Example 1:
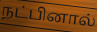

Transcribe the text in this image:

நட்பினால்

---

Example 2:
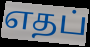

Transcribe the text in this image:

எதப்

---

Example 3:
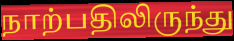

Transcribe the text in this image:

நாற்பதிலிருந்து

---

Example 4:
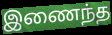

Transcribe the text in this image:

இணைந்த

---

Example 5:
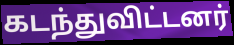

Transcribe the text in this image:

கடந்துவிட்டனர்